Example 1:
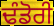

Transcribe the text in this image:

ਢੰਡੋਰੀ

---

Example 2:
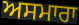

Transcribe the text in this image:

ਅਸਮਾਰਾ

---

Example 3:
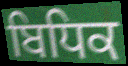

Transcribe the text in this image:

ਬਿਧਿਕ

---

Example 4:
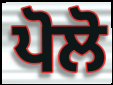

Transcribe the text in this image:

ਪੋਲੋ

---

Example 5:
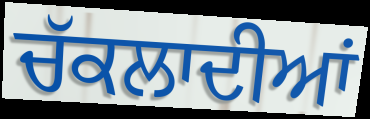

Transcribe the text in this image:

ਚੱਕਲਾਦੀਆਂ